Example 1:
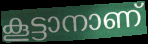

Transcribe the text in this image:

കൂട്ടാനാണ്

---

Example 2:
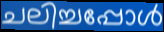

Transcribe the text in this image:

ചലിച്ചപ്പോൾ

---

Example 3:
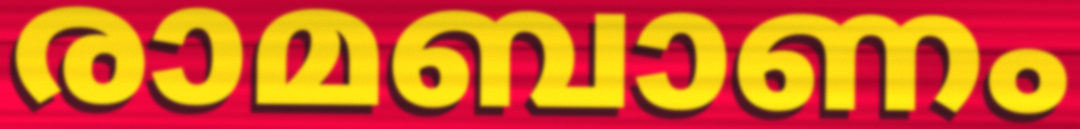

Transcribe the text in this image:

രാമബാണം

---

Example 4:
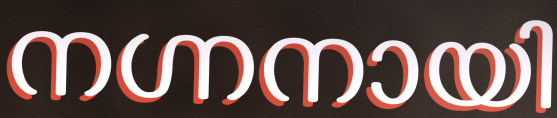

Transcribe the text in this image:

നഗ്നനായി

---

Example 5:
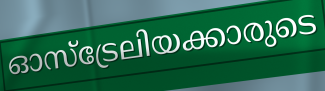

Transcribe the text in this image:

ഓസ്ട്രേലിയക്കാരുടെ